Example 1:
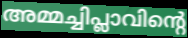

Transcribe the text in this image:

അമ്മച്ചിപ്ലാവിന്റെ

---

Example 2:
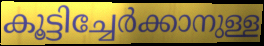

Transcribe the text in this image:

കൂട്ടിച്ചേർക്കാനുള്ള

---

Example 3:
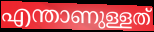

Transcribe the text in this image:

എന്താണുള്ളത്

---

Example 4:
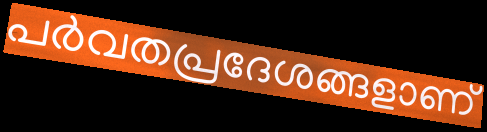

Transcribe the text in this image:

പർവതപ്രദേശങ്ങളാണ്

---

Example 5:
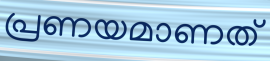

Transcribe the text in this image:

പ്രണയമാണത്